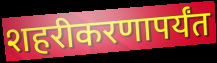
शहरीकरणापर्यंत